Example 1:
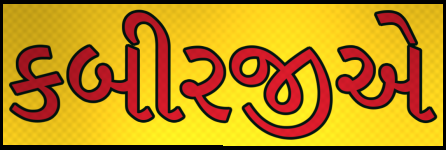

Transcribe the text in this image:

કબીરજીએ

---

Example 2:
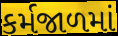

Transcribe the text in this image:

કર્મજાળમાં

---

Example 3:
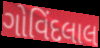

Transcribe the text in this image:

ગોવિંદલાલ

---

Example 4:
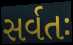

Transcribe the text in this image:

સર્વતઃ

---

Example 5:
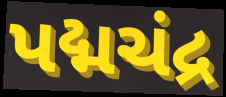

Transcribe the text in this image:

પદ્મચંદ્ર